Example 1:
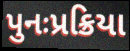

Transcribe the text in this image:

પુનઃપ્રક્રિયા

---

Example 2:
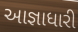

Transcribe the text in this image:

આજ્ઞાધારી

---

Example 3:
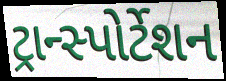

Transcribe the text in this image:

ટ્રાન્સ્પોર્ટેશન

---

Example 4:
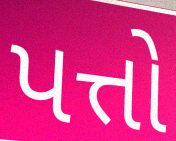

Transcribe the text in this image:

પત્તો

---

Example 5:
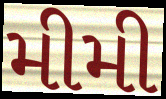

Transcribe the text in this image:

મીમી